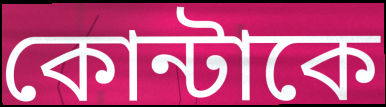
কোন্টাকে